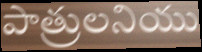
పాత్రులనియు